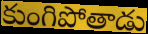
కుంగిపోతాడు